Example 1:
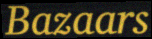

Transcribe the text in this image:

Bazaars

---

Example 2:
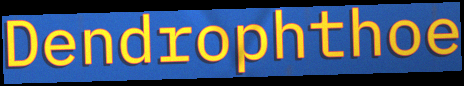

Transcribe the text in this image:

Dendrophthoe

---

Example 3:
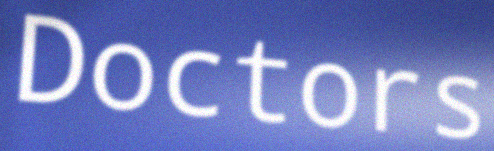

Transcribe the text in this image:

Doctors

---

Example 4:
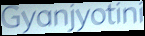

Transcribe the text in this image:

Gyanjyotini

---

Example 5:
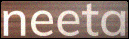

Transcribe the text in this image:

neeta